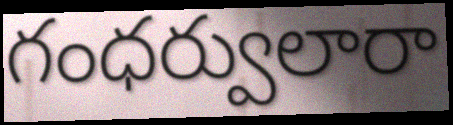
గంధర్వులారా